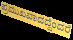
ಪ್ರಮುಖವಾದದ್ದೆಂದರೆ